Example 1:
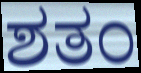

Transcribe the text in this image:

ಶತಂ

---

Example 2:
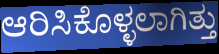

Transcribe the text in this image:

ಆರಿಸಿಕೊಳ್ಳಲಾಗಿತ್ತು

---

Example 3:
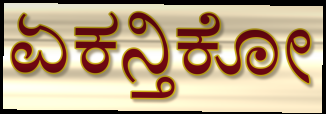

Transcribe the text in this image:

ಏಕನ್ತಿಕೋ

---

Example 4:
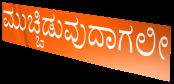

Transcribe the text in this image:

ಮುಚ್ಚಿಡುವುದಾಗಲೀ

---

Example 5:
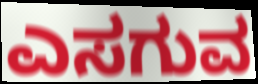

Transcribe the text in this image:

ಎಸಗುವ